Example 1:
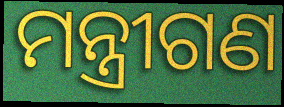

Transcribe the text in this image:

ମନ୍ତ୍ରୀଗଣ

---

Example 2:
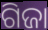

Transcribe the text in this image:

ଗିଜା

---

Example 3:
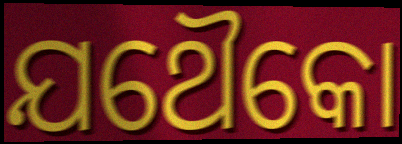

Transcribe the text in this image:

ଯଥୈକୋ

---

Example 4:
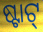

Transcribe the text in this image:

ଷ୍ଟାଟ୍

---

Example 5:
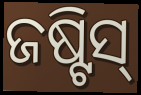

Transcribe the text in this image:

ଜଷ୍ଟିସ୍